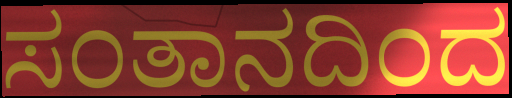
ಸಂತಾನದಿಂದ